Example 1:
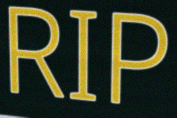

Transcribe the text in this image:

RIP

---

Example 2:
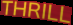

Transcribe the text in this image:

THRILL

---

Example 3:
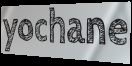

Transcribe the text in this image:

yochane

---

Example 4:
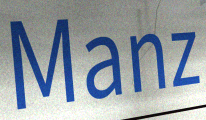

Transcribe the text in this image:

Manz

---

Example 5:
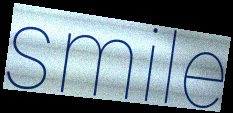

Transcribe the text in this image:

smile